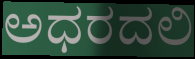
ಅಧರದಲಿ